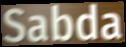
Sabda